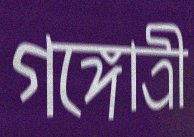
গঙ্গোত্রী